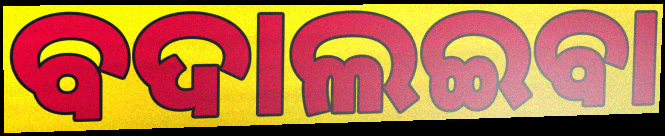
ବଦାଲଇବା